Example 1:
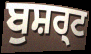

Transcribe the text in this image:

ਬੁਸ਼ਰ੍ਟ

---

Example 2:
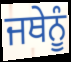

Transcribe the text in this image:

ਜਥੇਨੂੰ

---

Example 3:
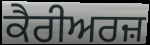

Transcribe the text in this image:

ਕੈਰੀਅਰਜ਼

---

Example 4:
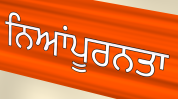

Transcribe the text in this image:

ਨਿਆਂਪੂਰਨਤਾ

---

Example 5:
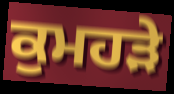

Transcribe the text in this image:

ਕੁਮਹੜੇ